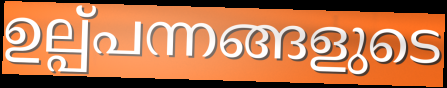
ഉല്പ്പന്നങ്ങളുടെ